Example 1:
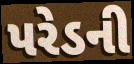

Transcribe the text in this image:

પરેડની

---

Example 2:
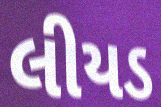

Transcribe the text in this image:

લીયડ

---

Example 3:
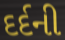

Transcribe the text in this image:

દર્દની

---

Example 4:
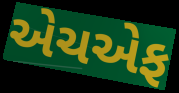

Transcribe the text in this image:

એચએફ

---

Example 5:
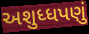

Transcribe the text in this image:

અશુધ્ધપણું